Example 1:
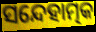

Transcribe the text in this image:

ସନ୍ଦେହାତ୍ମକ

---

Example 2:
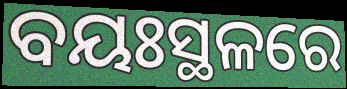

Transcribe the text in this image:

ବୟଃସ୍ଥଳରେ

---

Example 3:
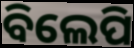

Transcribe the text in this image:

ବିଲେପି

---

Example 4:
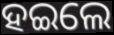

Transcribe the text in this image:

ହଇଲେ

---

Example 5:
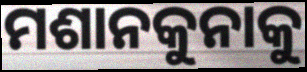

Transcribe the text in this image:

ମଶାନକୁନାକୁ